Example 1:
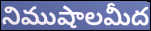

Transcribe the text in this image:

నిముషాలమీద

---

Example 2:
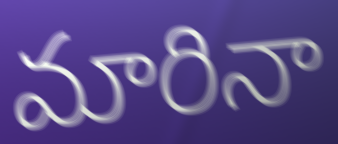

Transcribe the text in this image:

మారినా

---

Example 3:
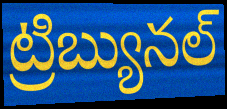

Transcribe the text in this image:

ట్రిబ్యునల్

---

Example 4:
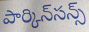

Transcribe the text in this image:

పార్కిన్‌సన్స్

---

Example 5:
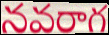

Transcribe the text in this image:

నవరాగ